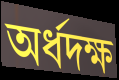
অর্ধদক্ষ